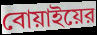
বোয়াইয়ের